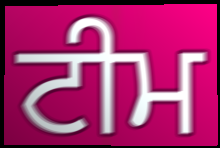
ਟੀਮ